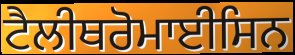
ਟੈਲੀਥਰੋਮਾਈਸਿਨ